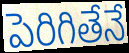
పెరిగితేనే